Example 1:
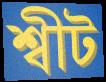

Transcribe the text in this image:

শ্বীট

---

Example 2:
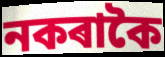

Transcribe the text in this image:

নকৰাকৈ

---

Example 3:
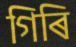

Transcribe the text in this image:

গিৰি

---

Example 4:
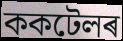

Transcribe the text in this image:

ককটেলৰ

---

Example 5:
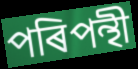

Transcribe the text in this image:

পৰিপন্থী